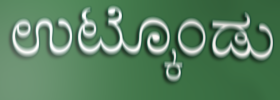
ಉಟ್ಕೊಂಡು